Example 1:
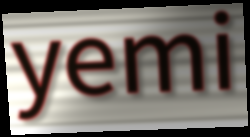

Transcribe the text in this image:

yemi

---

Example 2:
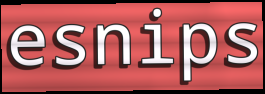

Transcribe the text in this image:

esnips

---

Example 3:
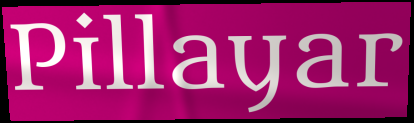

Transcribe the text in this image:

Pillayar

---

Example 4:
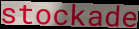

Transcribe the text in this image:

stockade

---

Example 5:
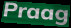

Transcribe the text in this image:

Praag